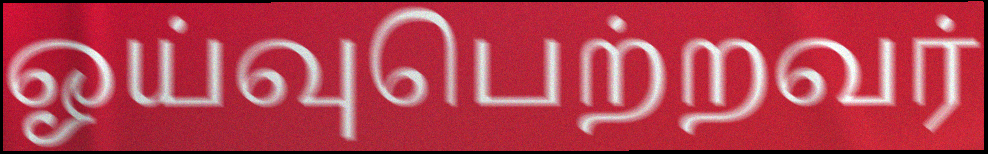
ஓய்வுபெற்றவர்